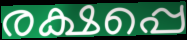
രക്ഷപ്പെ